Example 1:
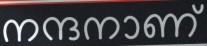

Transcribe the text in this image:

നന്ദനാണ്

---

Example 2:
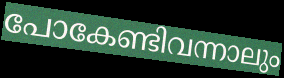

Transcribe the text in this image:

പോകേണ്ടിവന്നാലും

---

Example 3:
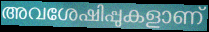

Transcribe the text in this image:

അവശേഷിപ്പുകളാണ്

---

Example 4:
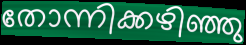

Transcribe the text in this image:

തോന്നിക്കഴിഞ്ഞു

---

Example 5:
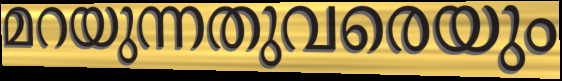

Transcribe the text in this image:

മറയുന്നതുവരെയും